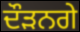
ਦੌੜਨਗੇ